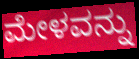
ಮೇಳವನ್ನು